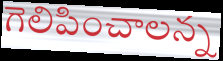
గెలిపించాలన్న